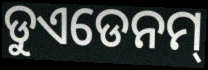
ଡୁଏଡେନମ୍